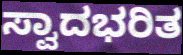
ಸ್ವಾದಭರಿತ